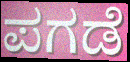
ಪಗಡೆ